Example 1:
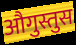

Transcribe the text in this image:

औगुस्तुस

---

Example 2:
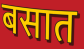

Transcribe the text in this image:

बसात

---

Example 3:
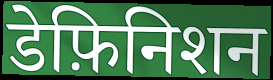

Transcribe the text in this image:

डेफ़िनिशन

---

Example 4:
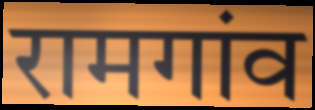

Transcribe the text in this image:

रामगांव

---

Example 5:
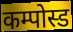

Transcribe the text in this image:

कम्पोस्ड